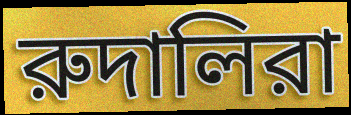
রুদালিরা